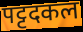
पट्टदकल